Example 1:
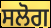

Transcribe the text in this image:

ਸਲੋਗ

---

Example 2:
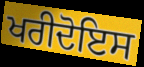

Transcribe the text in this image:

ਖਰੀਦੋਇਸ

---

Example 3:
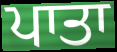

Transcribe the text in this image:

ਪਾਤਾ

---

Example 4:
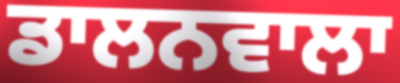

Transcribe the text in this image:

ਡਾਲਨਵਾਲਾ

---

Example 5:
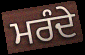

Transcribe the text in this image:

ਮਰੰਦੇ